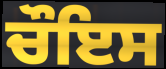
ਚੌਇਸ